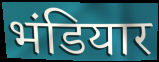
भंडियार